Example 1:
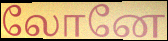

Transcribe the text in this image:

லோனே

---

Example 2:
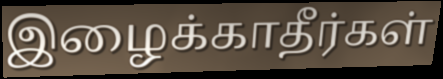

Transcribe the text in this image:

இழைக்காதீர்கள்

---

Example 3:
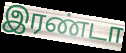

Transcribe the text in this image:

இரண்டா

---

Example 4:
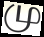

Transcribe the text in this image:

மு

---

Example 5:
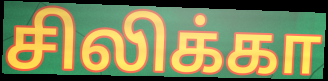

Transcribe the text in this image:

சிலிக்கா